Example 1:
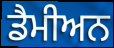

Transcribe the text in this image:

ਡੈਮੀਅਨ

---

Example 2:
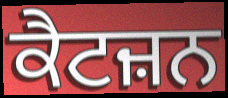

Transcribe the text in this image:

ਕੈਟਜ਼ਨ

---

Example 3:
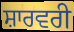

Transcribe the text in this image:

ਸ਼ਾਰਵਰੀ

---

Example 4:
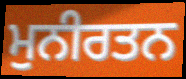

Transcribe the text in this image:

ਮੁਨੀਰਤਨ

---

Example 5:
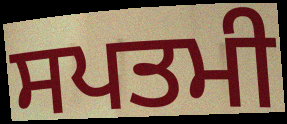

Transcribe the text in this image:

ਸਪਤਮੀ